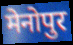
मेनोपुर